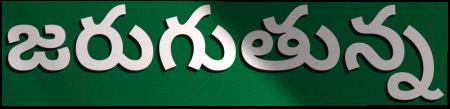
జరుగుతున్న